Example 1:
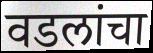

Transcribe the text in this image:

वडलांचा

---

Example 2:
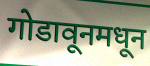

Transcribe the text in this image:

गोडावूनमधून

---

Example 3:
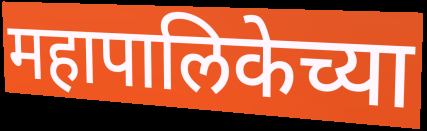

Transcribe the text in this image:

महापालिकेच्या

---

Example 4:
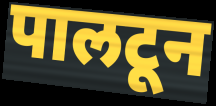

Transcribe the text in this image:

पालटून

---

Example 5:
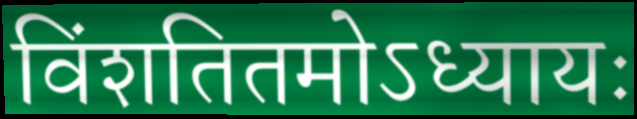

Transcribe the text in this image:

विंशतितमोऽध्यायः